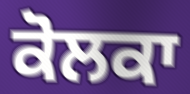
ਕੋਲਕਾ